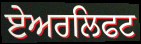
ਏਅਰਲਿਫਟ